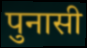
पुनासी